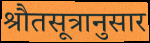
श्रौतसूत्रानुसार